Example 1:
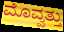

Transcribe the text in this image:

ಮೊವ್ವತ್ತು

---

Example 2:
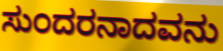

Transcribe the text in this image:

ಸುಂದರನಾದವನು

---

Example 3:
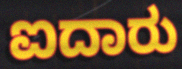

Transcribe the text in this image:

ಐದಾರು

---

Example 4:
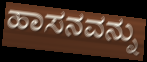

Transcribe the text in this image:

ಹಾಸನವನ್ನು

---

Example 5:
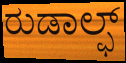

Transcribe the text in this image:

ರುಡಾಲ್ಫ್